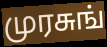
முரசுங்